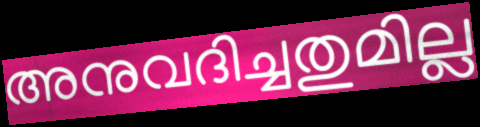
അനുവദിച്ചതുമില്ല